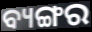
ବ୍ୟଙ୍ଗର